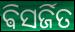
ଵିସର୍ଜିତ